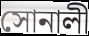
সোনালী